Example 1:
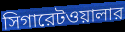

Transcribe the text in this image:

সিগারেটওয়ালার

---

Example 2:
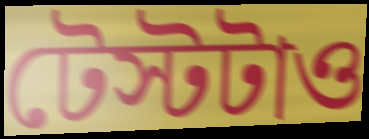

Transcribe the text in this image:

টেস্টটাও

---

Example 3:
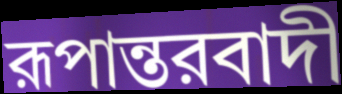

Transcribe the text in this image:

রূপান্তরবাদী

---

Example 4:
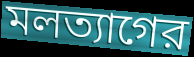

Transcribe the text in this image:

মলত্যাগের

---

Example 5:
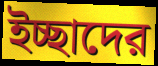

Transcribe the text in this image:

ইচ্ছাদের